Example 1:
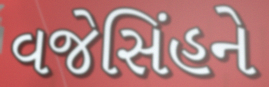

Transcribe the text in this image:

વજેસિંહને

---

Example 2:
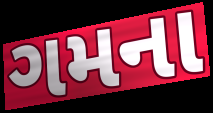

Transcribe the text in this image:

ગમના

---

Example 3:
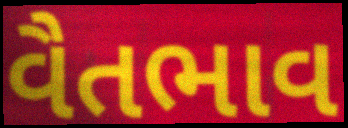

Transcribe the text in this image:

વૈતભાવ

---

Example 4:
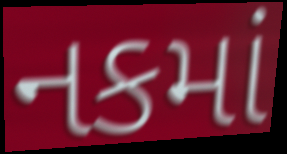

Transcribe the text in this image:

નકમાં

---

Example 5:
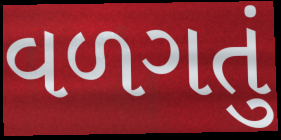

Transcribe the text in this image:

વળગતું